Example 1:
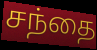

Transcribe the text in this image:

சந்தை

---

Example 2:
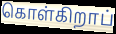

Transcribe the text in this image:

கொள்கிறாப்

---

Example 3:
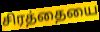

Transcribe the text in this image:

சிரத்தையை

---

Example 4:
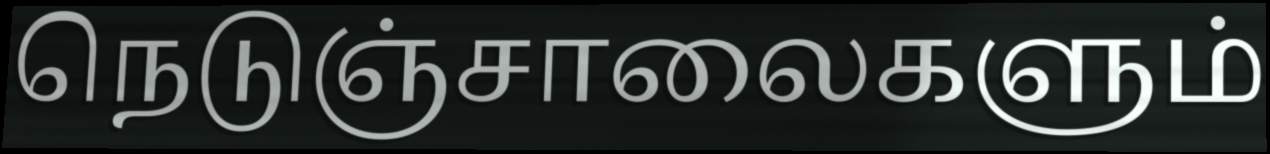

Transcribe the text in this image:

நெடுஞ்சாலைகளும்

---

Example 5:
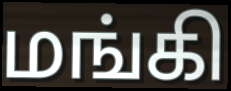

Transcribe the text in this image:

மங்கி